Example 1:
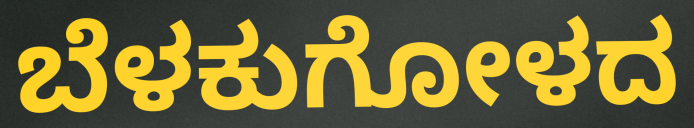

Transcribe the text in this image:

ಬೆಳಕುಗೋಳದ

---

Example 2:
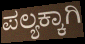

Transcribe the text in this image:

ಪಲ್ಯಕ್ಕಾಗಿ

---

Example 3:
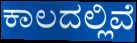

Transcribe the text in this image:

ಕಾಲದಲ್ಲಿವೆ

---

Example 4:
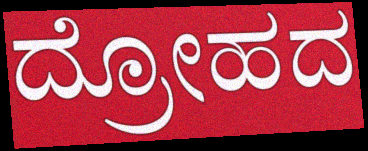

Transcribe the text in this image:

ದ್ರೋಹದ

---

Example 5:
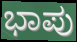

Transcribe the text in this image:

ಭಾಪು